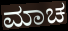
ಮಾಚ